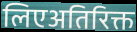
लिएअतिरिक्त